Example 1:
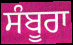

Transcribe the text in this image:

ਸੰਬੂਰਾ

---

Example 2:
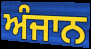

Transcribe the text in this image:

ਅੰਜਾਨ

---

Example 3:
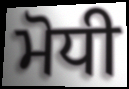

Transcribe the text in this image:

ਮੋਧੀ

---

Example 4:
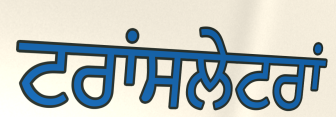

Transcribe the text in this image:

ਟਰਾਂਸਲੇਟਰਾਂ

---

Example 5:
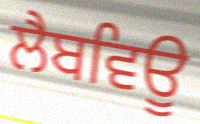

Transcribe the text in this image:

ਲੈਬਵਿਊ